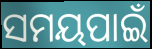
ସମୟପାଇଁ